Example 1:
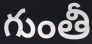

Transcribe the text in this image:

గుంతీ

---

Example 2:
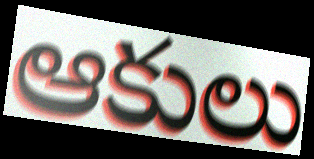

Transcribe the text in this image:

ఆకులు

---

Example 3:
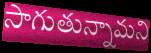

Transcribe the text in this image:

సాగుతున్నామని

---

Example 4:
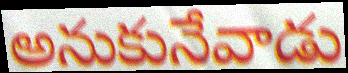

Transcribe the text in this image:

అనుకునేవాడు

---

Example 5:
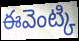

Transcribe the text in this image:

ఈవెంట్కి